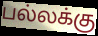
பல்லக்கு